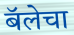
बॅलेचा